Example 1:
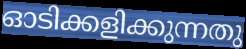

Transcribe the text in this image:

ഓടിക്കളിക്കുന്നതു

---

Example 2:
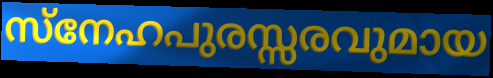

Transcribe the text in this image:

സ്നേഹപുരസ്സരവുമായ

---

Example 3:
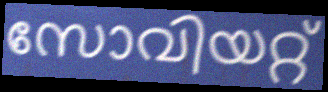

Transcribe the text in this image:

സോവിയറ്റ്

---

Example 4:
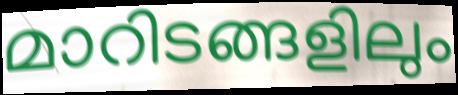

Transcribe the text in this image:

മാറിടങ്ങളിലും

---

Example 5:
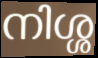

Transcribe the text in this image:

നിശ്ശ